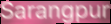
Sarangpur